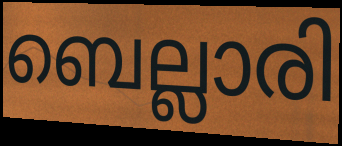
ബെല്ലാരി